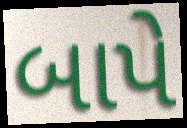
બાપે